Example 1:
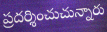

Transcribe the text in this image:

ప్రదర్శించుచున్నారు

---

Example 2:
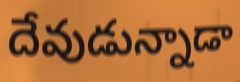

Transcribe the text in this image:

దేవుడున్నాడా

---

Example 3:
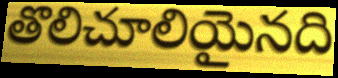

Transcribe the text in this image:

తొలిచూలియైనది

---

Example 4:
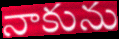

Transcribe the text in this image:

నాకును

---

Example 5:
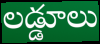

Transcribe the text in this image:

లడ్డూలు